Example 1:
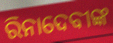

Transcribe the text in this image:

ରିନାଦେବୀଙ୍କ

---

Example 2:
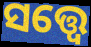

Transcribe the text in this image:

ସତ୍ତ୍ବେ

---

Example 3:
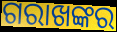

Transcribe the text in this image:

ଗରାଖଙ୍କର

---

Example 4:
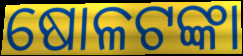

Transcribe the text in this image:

ଷୋଳଟଙ୍କା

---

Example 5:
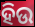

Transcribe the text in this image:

ହିଉ